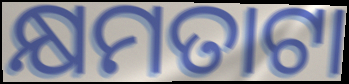
କ୍ଷମତାଟା